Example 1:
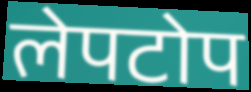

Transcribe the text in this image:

लेपटोप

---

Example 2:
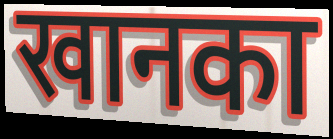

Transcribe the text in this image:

खानका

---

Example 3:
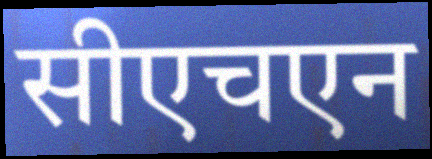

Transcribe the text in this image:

सीएचएन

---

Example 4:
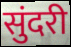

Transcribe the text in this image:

सुंदरी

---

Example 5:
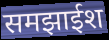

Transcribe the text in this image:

समझाईश